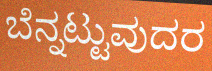
ಬೆನ್ನಟ್ಟುವುದರ